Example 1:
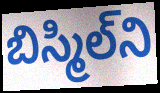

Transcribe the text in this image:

బిస్మిల్‌ని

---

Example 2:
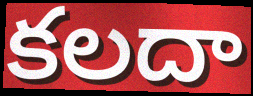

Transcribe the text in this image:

కలదా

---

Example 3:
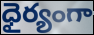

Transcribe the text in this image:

ధైర్యంగా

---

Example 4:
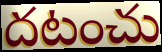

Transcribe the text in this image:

దటంచు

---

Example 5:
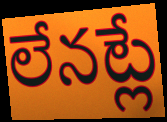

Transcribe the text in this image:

లేనట్లే